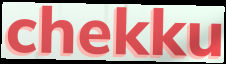
chekku